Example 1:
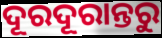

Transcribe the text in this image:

ଦୂରଦୂରାନ୍ତରୁ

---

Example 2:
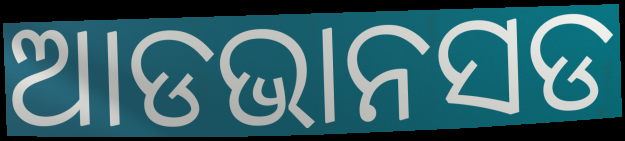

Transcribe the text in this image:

ଆଡଭାନସଡ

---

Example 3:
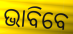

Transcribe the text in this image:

ଭାବିବେ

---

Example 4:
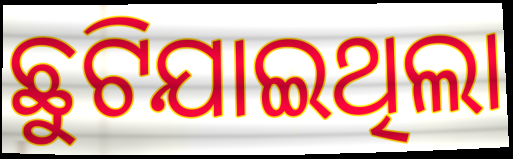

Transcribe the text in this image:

ଛୁଟିଯାଇଥିଲା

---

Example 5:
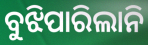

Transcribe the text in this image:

ବୁଝିପାରିଲାନି